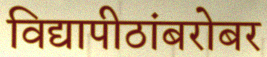
विद्यापीठांबरोबर